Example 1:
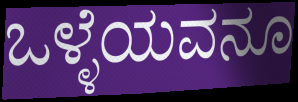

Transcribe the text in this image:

ಒಳ್ಳೆಯವನೂ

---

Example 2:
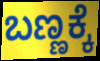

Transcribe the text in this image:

ಬಣ್ಣಕ್ಕೆ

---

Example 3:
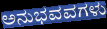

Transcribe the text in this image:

ಅನುಭವವಗಳು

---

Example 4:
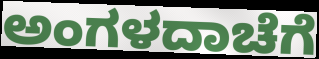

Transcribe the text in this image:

ಅಂಗಳದಾಚೆಗೆ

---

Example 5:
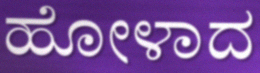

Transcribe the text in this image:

ಹೋಳಾದ